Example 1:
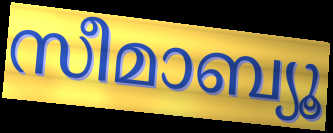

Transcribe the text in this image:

സീമാബ്യൂ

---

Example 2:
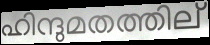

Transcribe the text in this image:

ഹിന്ദുമതത്തില്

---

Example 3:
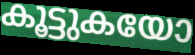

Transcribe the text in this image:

കൂട്ടുകയോ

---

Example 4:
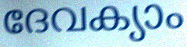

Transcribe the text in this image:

ദേവക്യാം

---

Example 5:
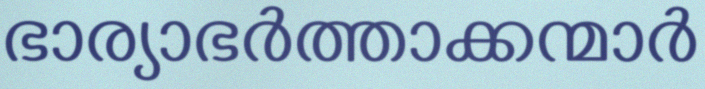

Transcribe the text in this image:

ഭാര്യാഭർത്താക്കന്മാർ